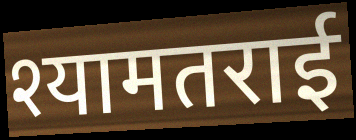
श्यामतराई